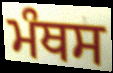
ਮੰਥਸ